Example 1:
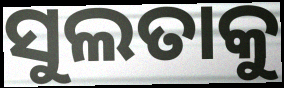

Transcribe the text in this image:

ସୁଲତାକୁ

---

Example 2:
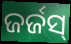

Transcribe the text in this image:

ଜର୍ଜସ୍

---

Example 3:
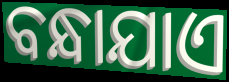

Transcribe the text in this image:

ବନ୍ଧାଯାଏ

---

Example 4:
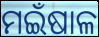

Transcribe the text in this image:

ମଇଁଷାଳ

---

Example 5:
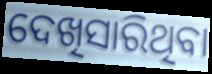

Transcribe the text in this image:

ଦେଖିସାରିଥିବା